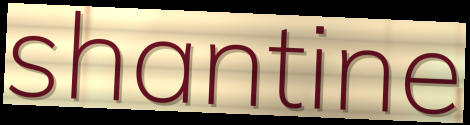
shantine